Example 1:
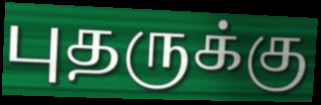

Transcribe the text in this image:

புதருக்கு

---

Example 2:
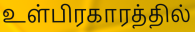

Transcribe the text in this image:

உள்பிரகாரத்தில்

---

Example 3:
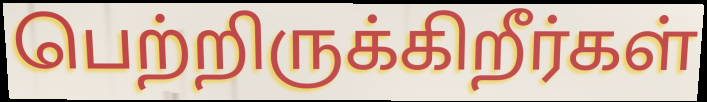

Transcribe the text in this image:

பெற்றிருக்கிறீர்கள்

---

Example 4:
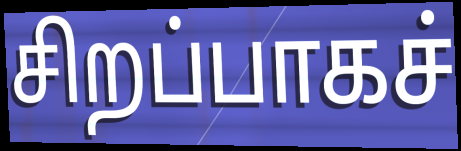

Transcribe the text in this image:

சிறப்பாகச்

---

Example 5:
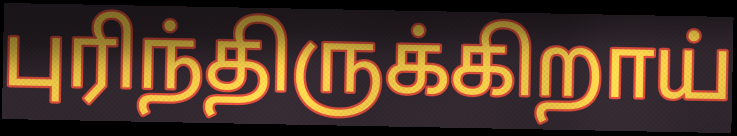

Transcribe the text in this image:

புரிந்திருக்கிறாய்